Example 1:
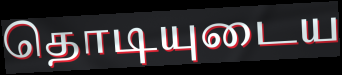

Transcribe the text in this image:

தொடியுடைய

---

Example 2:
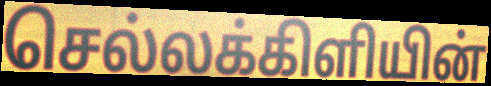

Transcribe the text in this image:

செல்லக்கிளியின்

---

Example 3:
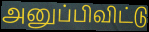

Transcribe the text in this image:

அனுப்பிவிட்டு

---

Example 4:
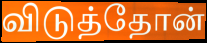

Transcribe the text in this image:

விடுத்தோன்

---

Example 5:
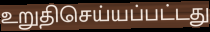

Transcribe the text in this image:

உறுதிசெய்யப்பட்டது